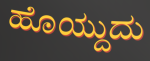
ಹೊಯ್ದುದು